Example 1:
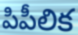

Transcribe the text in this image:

పిపీలిక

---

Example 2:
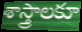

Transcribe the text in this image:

శాస్త్రాలకూ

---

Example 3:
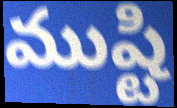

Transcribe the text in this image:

ముష్టి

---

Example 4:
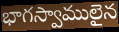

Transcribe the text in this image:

భాగస్వాములైన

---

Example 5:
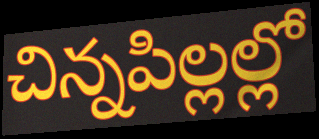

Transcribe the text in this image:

చిన్నపిల్లల్లో